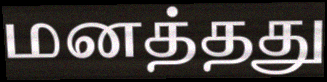
மனத்தது